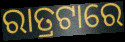
ରାତ୍ରଟାରେ